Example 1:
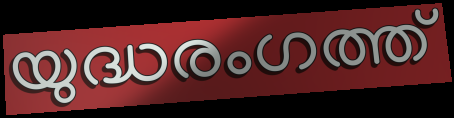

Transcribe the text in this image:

യുദ്ധരംഗത്ത്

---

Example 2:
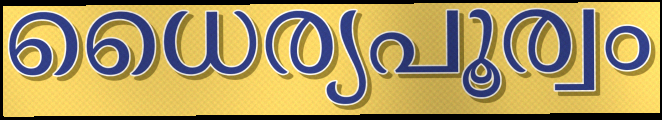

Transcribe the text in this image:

ധൈര്യപൂര്വം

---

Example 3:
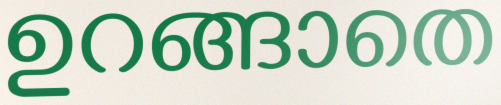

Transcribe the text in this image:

ഉറങ്ങാതെ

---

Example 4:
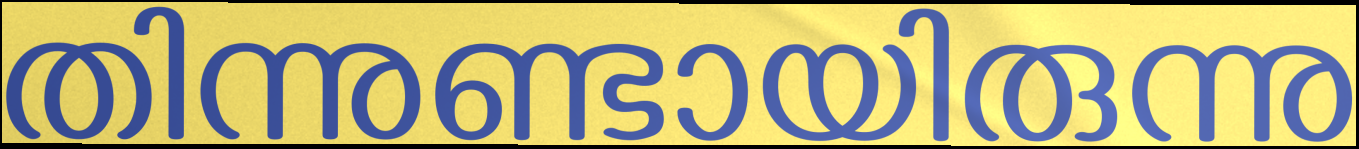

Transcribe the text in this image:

തിന്നുണ്ടായിരുന്നു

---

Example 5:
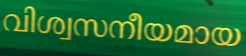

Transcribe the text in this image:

വിശ്വസനീയമായ